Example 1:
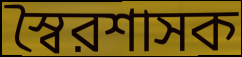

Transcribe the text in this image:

স্বৈরশাসক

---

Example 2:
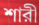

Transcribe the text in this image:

শারী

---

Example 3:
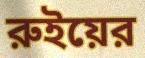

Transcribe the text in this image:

রুইয়ের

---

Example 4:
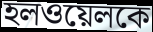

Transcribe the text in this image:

হলওয়েলকে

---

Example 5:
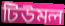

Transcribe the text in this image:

টিউমল